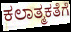
ಕಲಾತ್ಮಕತೆಗೆ